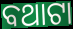
ବଥାଟା